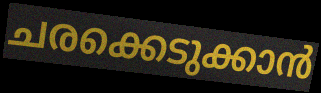
ചരക്കെടുക്കാൻ